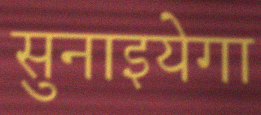
सुनाइयेगा